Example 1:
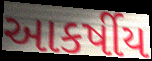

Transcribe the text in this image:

આકર્ષીય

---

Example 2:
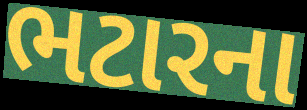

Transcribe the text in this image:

ભટારના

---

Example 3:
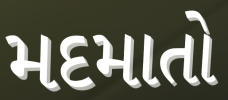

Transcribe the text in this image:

મદમાતો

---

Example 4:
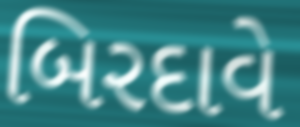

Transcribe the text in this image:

બિરદાવે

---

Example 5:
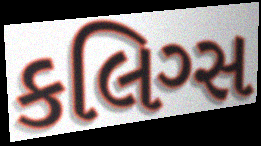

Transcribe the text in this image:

કલિગ્સ